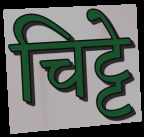
चिट्टे